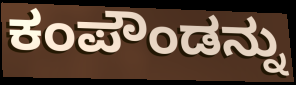
ಕಂಪೌಂಡನ್ನು